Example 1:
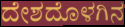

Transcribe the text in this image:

ದೇಶದೊಳಗಿನ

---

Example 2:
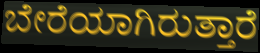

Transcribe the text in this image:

ಬೇರೆಯಾಗಿರುತ್ತಾರೆ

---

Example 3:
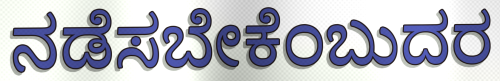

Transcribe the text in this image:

ನಡೆಸಬೇಕೆಂಬುದರ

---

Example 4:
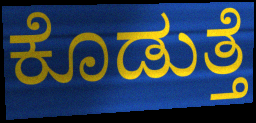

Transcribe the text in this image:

ಕೊಡುತ್ತೆ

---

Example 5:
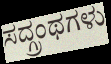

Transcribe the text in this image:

ಸದ್ಗ್ರಂಥಗಳು